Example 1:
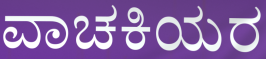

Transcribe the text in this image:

ವಾಚಕಿಯರ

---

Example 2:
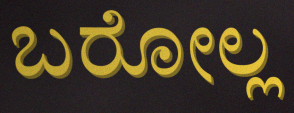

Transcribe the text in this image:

ಬರೋಲ್ಲ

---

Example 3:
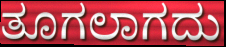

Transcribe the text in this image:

ತೂಗಲಾಗದು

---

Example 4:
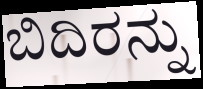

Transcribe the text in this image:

ಬಿದಿರನ್ನು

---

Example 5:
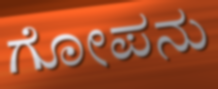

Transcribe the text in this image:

ಗೋಪನು